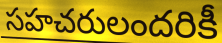
సహచరులందరికీ